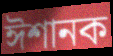
ঈশানক